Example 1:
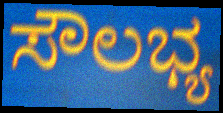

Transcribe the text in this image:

ಸೌಲಭ್ಯ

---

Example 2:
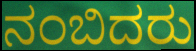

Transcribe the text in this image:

ನಂಬಿದರು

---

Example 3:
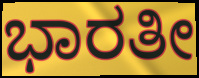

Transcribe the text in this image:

ಭಾರತೀ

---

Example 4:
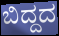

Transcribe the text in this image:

ಬಿದ್ದದ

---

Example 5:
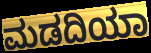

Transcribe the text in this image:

ಮಡದಿಯಾ